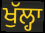
ਖੁੱਲ੍ਹਾ